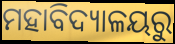
ମହାବିଦ୍ୟାଳୟରୁ